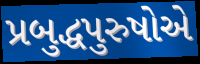
પ્રબુદ્ધપુરુષોએ